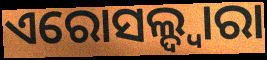
ଏରୋସଲ୍ଦ୍ୱାରା